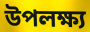
উপলক্ষ্য